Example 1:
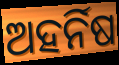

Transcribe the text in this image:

ଅହର୍ନିଷ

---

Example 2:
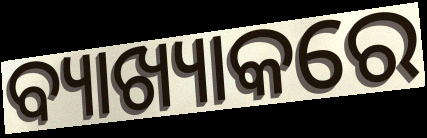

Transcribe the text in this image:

ବ୍ୟାଖ୍ୟାକରେ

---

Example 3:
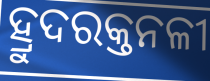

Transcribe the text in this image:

ହ୍ରୁଦରକ୍ତନଳୀ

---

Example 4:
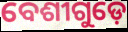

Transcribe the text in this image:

ବେଶୀଗୁଡ଼େ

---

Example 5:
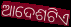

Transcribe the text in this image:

ଆଦେଶଟିଏ